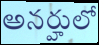
అనర్హులో